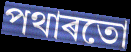
পথাৰতো